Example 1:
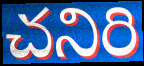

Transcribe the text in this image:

చనిరి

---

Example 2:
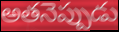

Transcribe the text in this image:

అతనెప్పుడు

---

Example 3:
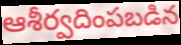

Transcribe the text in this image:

ఆశీర్వదింపబడిన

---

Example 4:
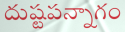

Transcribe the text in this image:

దుష్టపన్నాగం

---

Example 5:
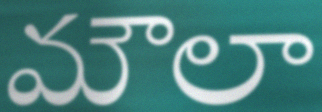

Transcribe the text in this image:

మౌలా